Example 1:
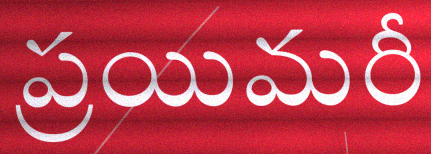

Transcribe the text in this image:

ప్రయిమరీ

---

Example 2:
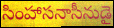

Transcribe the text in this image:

సింహాసనాసీనుడై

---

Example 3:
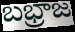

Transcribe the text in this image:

బభ్రాజ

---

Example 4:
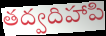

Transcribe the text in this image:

తద్వదిహాపి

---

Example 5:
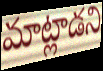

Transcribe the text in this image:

మాట్లాడని